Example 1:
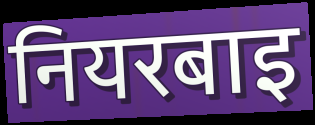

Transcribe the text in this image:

नियरबाइ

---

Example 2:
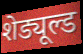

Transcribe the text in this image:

शेड्यूल्ड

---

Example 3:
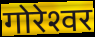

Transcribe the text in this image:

गोरेश्वर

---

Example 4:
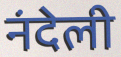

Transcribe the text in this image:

नंदेली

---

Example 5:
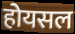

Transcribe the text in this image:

होयसल